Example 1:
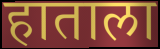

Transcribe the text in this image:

हाताला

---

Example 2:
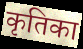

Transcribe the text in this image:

कृतिका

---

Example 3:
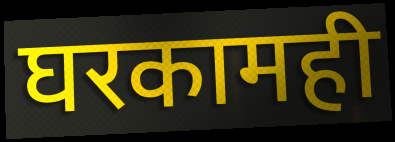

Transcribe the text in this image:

घरकामही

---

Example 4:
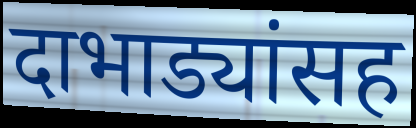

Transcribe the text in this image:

दाभाड्यांसह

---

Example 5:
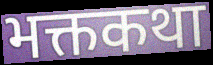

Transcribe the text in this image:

भक्तकथा